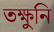
তক্ষুনি